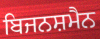
ਬਿਜਨਸ਼ਮੈਨ